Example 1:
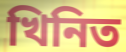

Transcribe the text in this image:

খিনিত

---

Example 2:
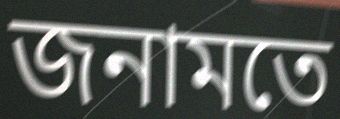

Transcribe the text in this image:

জনামতে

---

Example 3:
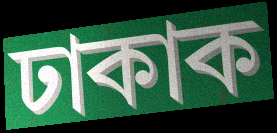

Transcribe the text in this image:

ঢাকাক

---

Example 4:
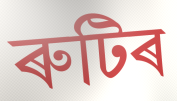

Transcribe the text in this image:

ৰুটিৰ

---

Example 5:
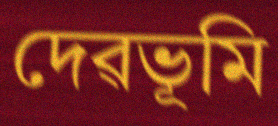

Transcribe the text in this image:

দেৱভূমি